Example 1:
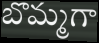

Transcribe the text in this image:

బొమ్మగా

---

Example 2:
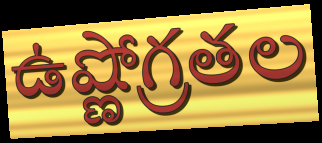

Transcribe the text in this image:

ఉష్ణోగ్రతల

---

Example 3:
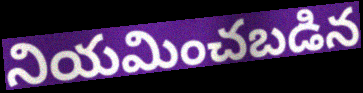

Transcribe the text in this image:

నియమించబడిన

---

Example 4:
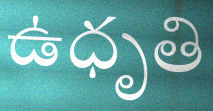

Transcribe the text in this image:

ఉధృతి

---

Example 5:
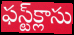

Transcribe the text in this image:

ఫస్ట్‌క్లాసు